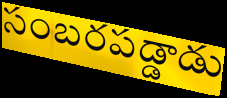
సంబరపడ్డాడు